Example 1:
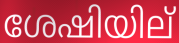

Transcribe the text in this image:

ശേഷിയില്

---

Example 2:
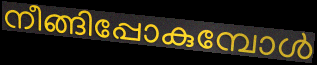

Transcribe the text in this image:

നീങ്ങിപ്പോകുമ്പോൾ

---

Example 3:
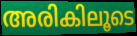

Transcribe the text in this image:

അരികിലൂടെ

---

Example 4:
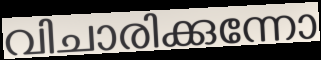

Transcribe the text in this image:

വിചാരിക്കുന്നോ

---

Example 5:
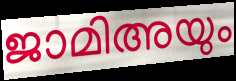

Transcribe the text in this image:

ജാമിഅയും